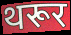
थरूर